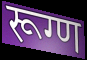
रूग्ण